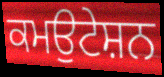
ਕਮਉਟੇਸ਼ਨ